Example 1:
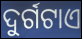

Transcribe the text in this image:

ଦୁର୍ଗଟାଏ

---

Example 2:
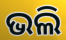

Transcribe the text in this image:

ଭଲି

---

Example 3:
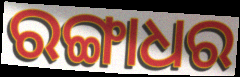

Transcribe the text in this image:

ରଙ୍ଗାଧର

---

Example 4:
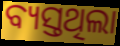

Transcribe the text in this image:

ବ୍ୟସ୍ତଥିଲା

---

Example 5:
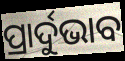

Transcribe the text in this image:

ପ୍ରାର୍ଦୁଭାବ